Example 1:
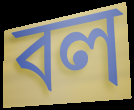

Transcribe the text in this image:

বল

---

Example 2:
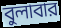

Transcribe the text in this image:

বুলাবার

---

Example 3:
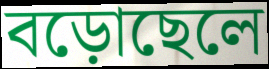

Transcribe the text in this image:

বড়োছেলে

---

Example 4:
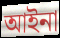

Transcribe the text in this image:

আইনা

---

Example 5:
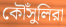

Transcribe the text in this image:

কৌঁসুলিরা